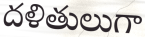
దళితులుగా